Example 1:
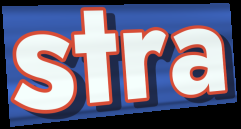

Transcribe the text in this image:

stra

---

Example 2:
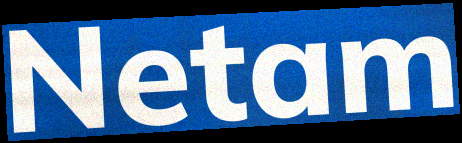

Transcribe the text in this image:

Netam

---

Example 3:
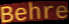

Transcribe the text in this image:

Behre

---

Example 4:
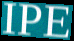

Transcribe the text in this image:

IPE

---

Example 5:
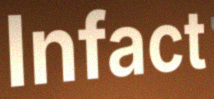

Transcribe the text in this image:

Infact